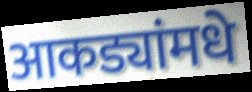
आकड्यांमधे